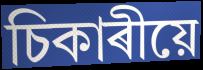
চিকাৰীয়ে